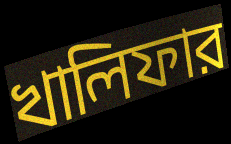
খালিফার